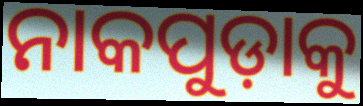
ନାକପୁଡ଼ାକୁ